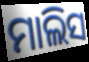
ମାଲିସ